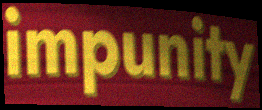
impunity